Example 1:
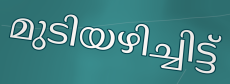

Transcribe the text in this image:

മുടിയഴിച്ചിട്ട്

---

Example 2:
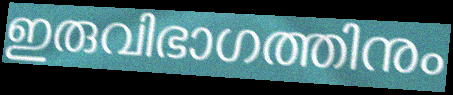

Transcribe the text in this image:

ഇരുവിഭാഗത്തിനും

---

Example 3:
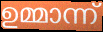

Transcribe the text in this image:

ഉമ്മാന്ന്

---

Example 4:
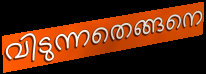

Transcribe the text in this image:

വിടുന്നതെങ്ങനെ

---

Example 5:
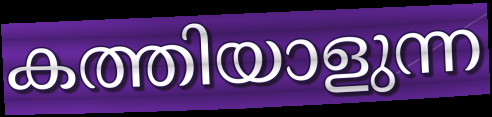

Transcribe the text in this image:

കത്തിയാളുന്ന